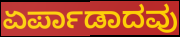
ಏರ್ಪಾಡಾದವು